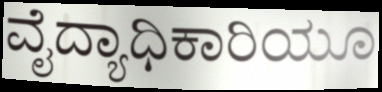
ವೈದ್ಯಾಧಿಕಾರಿಯೂ